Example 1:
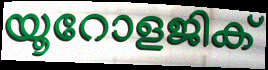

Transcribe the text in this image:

യൂറോളജിക്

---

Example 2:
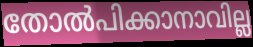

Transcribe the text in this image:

തോൽപിക്കാനാവില്ല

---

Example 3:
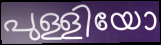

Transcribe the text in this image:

പുള്ളിയോ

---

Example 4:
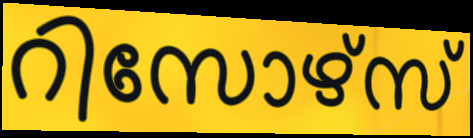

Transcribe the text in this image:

റിസോഴ്സ്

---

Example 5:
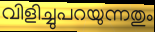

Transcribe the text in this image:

വിളിച്ചുപറയുന്നതും